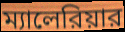
ম্যালেরিয়ার